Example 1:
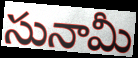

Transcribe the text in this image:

సునామీ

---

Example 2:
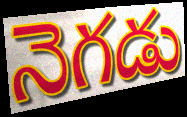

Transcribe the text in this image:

నెగడు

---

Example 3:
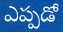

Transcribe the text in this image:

ఎప్పడో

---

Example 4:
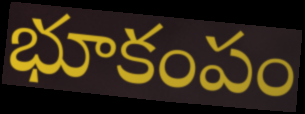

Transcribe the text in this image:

భూకంపం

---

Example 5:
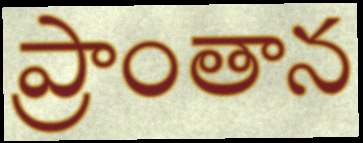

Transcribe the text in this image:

ప్రాంతాన